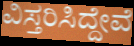
ವಿಸ್ತರಿಸಿದ್ದೇವೆ